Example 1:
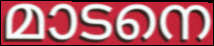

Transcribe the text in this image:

മാടനെ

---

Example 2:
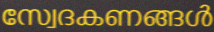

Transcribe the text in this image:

സ്വേദകണങ്ങൾ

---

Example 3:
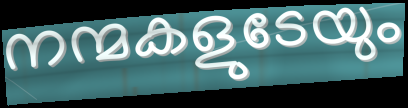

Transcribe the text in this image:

നന്മകളുടേയും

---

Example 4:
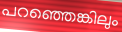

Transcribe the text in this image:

പറഞ്ഞെങ്കിലും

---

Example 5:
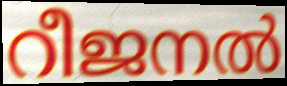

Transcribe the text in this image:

റീജനൽ